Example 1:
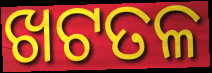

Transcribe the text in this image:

ଖଟତଳ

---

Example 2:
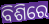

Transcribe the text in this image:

ବିଶିରେ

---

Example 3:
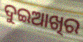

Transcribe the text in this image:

ଦୁଇଆଖିର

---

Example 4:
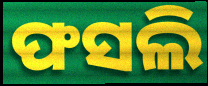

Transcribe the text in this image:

ଫସଲି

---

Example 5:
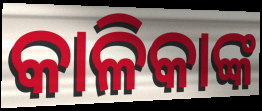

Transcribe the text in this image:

କାଳିକାଙ୍କ